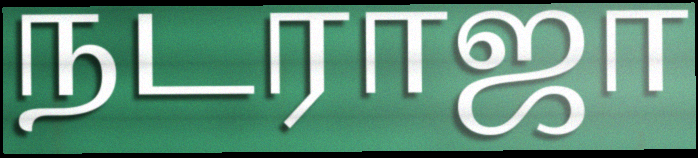
நடராஜா